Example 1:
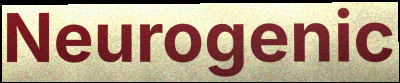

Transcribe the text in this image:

Neurogenic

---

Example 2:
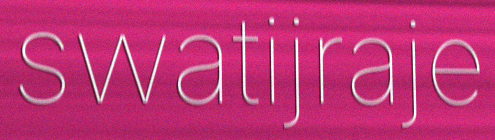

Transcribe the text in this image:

swatijraje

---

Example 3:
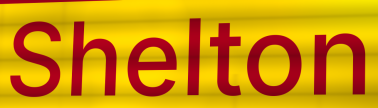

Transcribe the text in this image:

Shelton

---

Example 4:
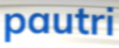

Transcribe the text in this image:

pautri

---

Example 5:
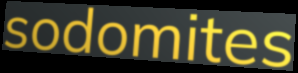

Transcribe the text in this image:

sodomites